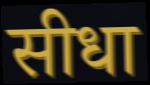
सीधा